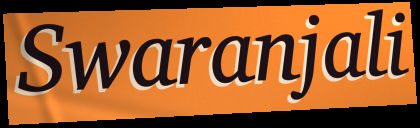
Swaranjali